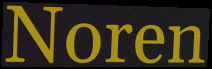
Noren